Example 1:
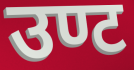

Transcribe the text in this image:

उण्ट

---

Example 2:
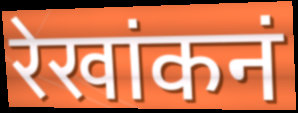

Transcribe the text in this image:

रेखांकनं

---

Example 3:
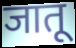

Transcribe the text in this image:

जातू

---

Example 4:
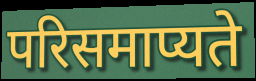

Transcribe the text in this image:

परिसमाप्यते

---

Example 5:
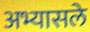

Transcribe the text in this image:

अभ्यासले